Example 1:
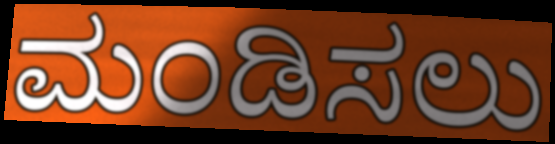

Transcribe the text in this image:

ಮಂಡಿಸಲು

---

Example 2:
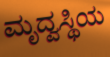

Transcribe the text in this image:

ಮೃದ್ವಸ್ಥಿಯ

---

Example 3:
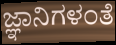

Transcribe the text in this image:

ಜ್ಞಾನಿಗಳಂತೆ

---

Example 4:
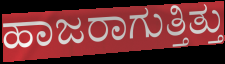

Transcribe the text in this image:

ಹಾಜರಾಗುತ್ತಿತ್ತು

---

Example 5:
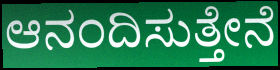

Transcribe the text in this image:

ಆನಂದಿಸುತ್ತೇನೆ